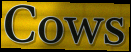
Cows